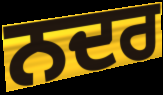
ਨਦਰ